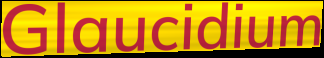
Glaucidium